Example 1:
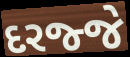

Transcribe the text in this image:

દરજ્જે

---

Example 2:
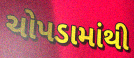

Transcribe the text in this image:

ચોપડામાંથી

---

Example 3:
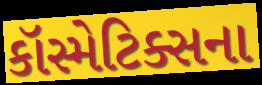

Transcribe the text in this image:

કૉસ્મેટિક્સના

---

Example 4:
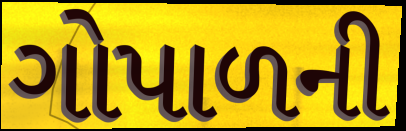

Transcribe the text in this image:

ગોપાળની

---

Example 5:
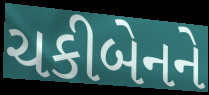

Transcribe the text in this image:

ચકીબેનને